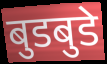
बुडबुडे